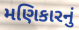
મણિકારનું